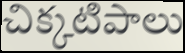
చిక్కటిపాలు